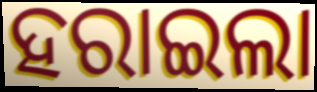
ହରାଇଲା